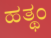
ಹತ್ಥಂ